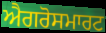
ਐਗਰੋਸਮਾਰਟ